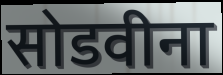
सोडवीना